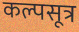
कल्पसूत्र